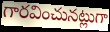
గారవించునట్లుగా